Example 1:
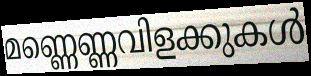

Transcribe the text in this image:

മണ്ണെണ്ണവിളക്കുകൾ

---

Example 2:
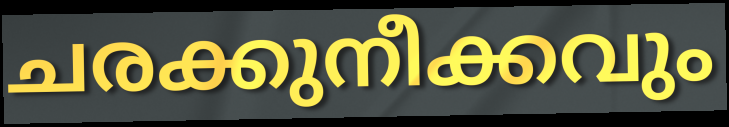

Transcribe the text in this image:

ചരക്കുനീക്കവും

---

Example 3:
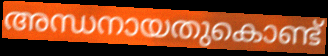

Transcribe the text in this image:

അന്ധനായതുകൊണ്ട്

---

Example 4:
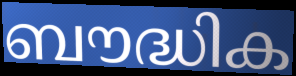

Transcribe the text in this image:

ബൗദ്ധിക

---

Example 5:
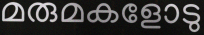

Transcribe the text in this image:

മരുമകളോടു